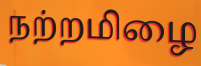
நற்றமிழை